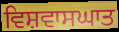
ਵਿਸ਼ਵਾਸਘਾਤ